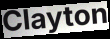
Clayton